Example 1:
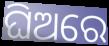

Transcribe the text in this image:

ଘିଅରେ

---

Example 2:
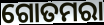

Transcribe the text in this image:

ଗୋତମରା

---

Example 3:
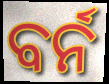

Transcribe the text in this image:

ବର୍ନ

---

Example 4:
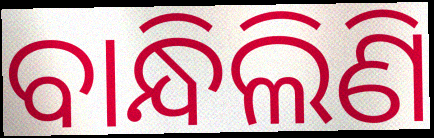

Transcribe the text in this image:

ବାନ୍ଧିଲିଣି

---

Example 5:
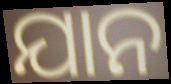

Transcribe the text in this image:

ଯାନ